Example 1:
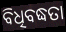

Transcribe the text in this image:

ବିଧିବଦ୍ଧତା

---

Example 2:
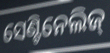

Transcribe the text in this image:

ସେଣ୍ଟିନେଲିଜ୍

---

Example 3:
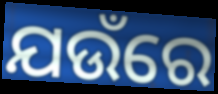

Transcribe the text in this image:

ଯଉଁରେ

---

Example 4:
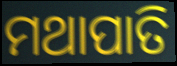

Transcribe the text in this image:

ମଥାପାତି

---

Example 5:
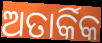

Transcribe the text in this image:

ଅତାର୍କିକ